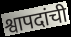
श्वापदांची